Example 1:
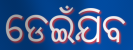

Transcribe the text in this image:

ଡେଇଁଯିବ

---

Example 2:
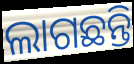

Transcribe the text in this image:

ଲାଗଛନ୍ତି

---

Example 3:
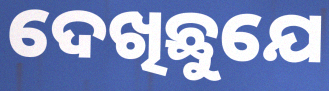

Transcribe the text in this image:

ଦେଖିଛୁଯେ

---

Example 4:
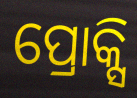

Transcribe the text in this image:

ପ୍ରୋକ୍ସି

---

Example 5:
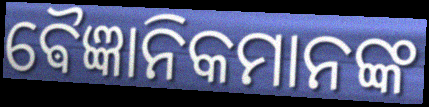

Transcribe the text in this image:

ଵୈଜ୍ଞାନିକମାନଙ୍କ